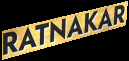
RATNAKAR